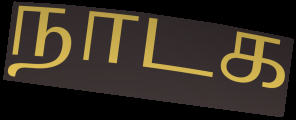
நாடக